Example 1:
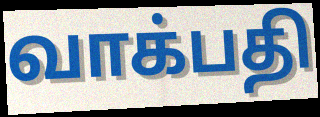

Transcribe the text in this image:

வாக்பதி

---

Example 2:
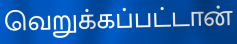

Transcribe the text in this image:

வெறுக்கப்பட்டான்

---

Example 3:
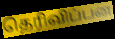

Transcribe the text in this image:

தெரிவிப்பன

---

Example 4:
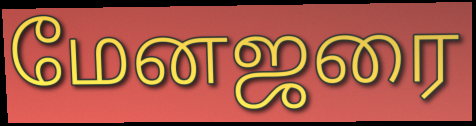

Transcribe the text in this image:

மேனஜரை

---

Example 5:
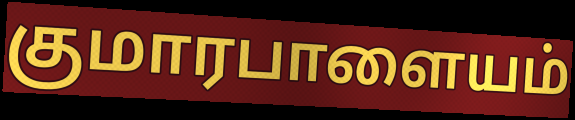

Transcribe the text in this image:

குமாரபாளையம்